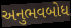
અનુભવબોધ